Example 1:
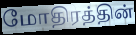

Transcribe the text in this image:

மோதிரத்தின்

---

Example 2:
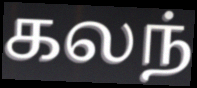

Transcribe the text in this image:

கலந்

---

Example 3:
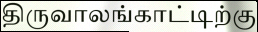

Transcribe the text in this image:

திருவாலங்காட்டிற்கு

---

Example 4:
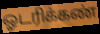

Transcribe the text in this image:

ஓடரிக்கண்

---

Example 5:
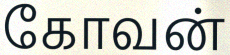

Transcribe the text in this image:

கோவன்